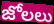
జోలలు